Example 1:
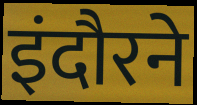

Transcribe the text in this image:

इंदौरने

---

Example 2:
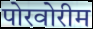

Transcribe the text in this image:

पोरवोरीम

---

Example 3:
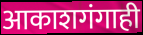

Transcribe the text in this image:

आकाशगंगाही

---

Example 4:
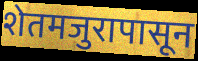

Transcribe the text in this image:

शेतमजुरापासून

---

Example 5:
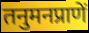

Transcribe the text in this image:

तनुमनप्राणें